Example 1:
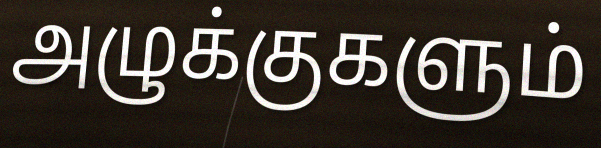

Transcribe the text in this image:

அழுக்குகளும்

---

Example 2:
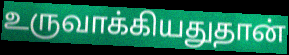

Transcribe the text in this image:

உருவாக்கியதுதான்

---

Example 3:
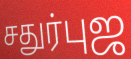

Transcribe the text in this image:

சதுர்புஜ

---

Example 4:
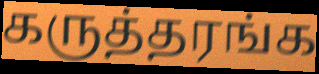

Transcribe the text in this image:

கருத்தரங்க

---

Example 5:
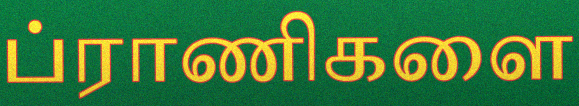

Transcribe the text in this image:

ப்ராணிகளை